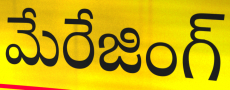
మేరేజింగ్